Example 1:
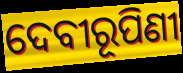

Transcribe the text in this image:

ଦେବୀରୂପିଣୀ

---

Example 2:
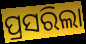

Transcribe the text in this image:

ପ୍ରସରିଲା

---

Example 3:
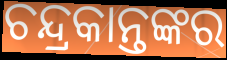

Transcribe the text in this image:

ଚନ୍ଦ୍ରକାନ୍ତଙ୍କର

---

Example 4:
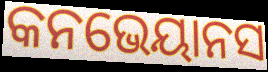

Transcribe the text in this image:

କନଭେୟାନସ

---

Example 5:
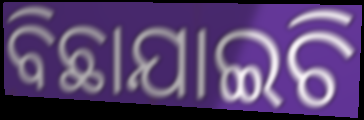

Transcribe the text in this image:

ବିଛାଯାଇଚି